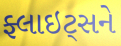
ફ્લાઇટ્સને